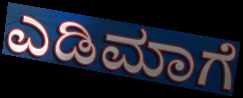
ಎಡಿಮಾಗೆ